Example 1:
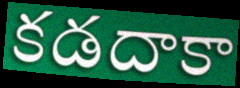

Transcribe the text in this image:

కడదాకా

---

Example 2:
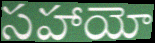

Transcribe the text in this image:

సహాయో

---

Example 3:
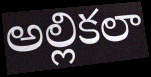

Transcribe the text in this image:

అల్లికలా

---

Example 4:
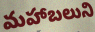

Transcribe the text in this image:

మహాబలుని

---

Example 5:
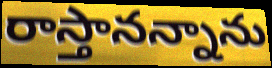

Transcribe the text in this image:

రాస్తానన్నాను